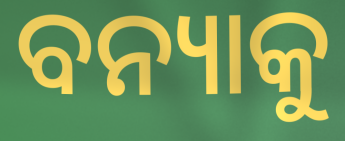
ବନ୍ୟାକୁ